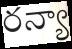
రన్యా